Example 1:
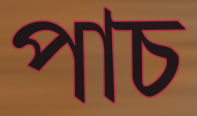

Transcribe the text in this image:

পাচ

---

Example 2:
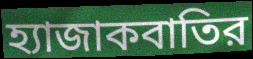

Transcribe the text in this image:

হ্যাজাকবাতির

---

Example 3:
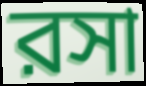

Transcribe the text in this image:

রসা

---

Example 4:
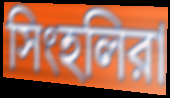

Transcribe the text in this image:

সিংহলিরা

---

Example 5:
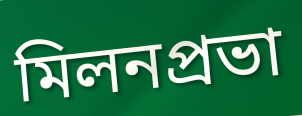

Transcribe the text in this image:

মিলনপ্রভা